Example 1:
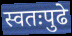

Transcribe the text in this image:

स्वतःपुढे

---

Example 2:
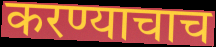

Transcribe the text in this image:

करण्याचाच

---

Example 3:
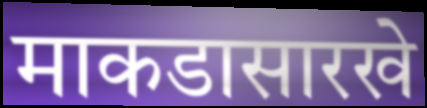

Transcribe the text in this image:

माकडासारखे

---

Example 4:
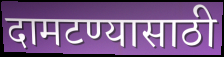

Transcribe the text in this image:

दामटण्यासाठी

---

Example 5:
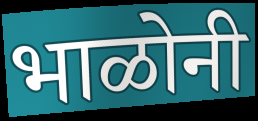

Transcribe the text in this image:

भाळोनी